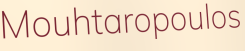
Mouhtaropoulos